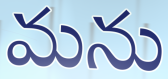
మను